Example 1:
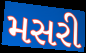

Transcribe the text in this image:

મસરી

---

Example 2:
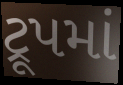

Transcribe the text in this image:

ટ્રૂપમાં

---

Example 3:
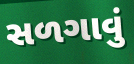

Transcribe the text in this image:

સળગાવું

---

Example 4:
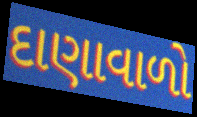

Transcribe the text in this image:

દાણાવાળો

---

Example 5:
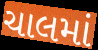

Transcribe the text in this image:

ચાલમાં